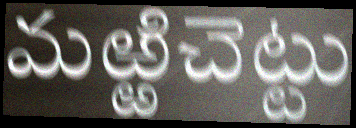
మఱ్ఱిచెట్టు